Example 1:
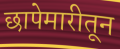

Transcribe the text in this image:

छापेमारीतून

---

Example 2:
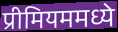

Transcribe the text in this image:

प्रीमियममध्ये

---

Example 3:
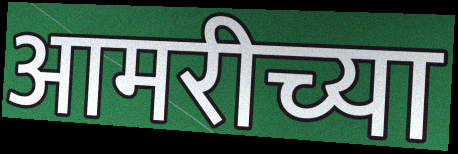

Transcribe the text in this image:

आमरीच्या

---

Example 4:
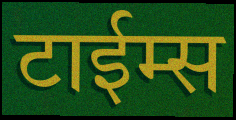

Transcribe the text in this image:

टाईम्स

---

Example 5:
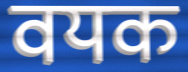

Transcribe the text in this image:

वयक